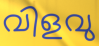
വിളവു